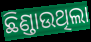
ଛିଣ୍ଡାଉଥିଲା